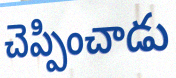
చెప్పించాడు